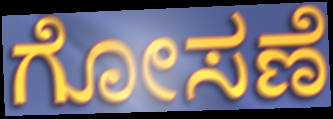
ಗೋಸಣೆ